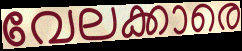
വേലക്കാരെ